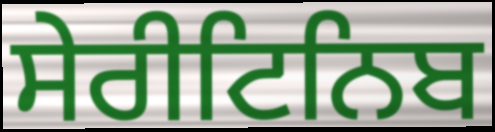
ਸੇਰੀਟਿਨਿਬ